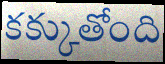
కక్కుతోంది